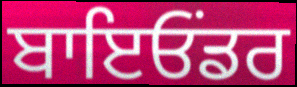
ਬਾਇਓਂਡਰ